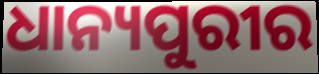
ଧାନ୍ୟପୁରୀର